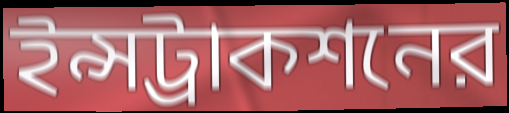
ইন্সট্রাকশনের